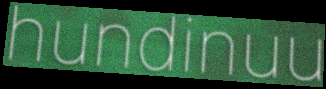
hundinuu